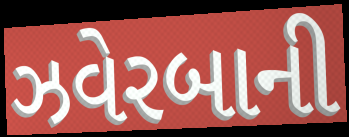
ઝવેરબાની